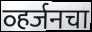
व्हर्जनचा